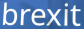
brexit